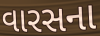
વારસના